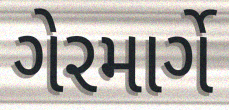
ગેરમાર્ગે